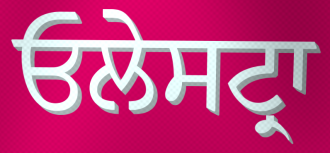
ਓਲੇਸਟ੍ਰਾ